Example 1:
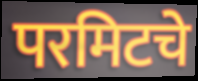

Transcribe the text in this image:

परमिटचे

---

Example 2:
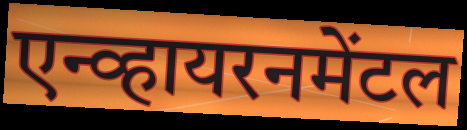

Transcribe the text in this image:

एन्व्हायरनमेंटल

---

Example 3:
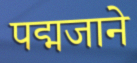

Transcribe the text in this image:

पद्मजाने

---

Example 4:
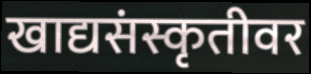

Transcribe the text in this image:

खाद्यसंस्कृतीवर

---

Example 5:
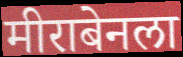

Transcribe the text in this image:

मीराबेनला